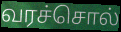
வரச்சொல்